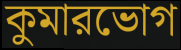
কুমারভোগ